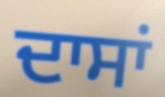
ਦਾਸਾਂ